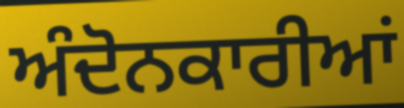
ਅੰਦੋਨਕਾਰੀਆਂ